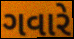
ગવારે